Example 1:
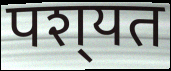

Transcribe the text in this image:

पश्यत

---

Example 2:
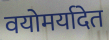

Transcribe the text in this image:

वयोमर्यादेत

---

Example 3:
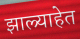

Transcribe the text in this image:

झाल्याहेत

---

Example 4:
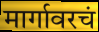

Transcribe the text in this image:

मार्गावरचं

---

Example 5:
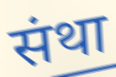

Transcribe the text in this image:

संथा